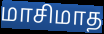
மாசிமாத